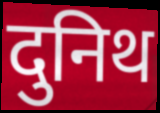
दुनिथ